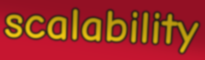
scalability